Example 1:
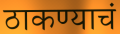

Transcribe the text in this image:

ठाकण्याचं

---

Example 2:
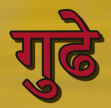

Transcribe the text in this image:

गुढे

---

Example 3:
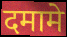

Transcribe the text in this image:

दमामे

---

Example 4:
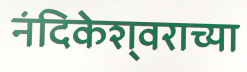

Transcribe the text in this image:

नंदिकेश्वराच्या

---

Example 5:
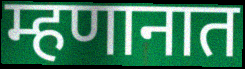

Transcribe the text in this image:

म्हणानात